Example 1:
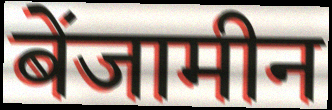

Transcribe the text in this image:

बेंजामीन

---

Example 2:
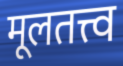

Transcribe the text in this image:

मूलतत्त्व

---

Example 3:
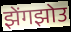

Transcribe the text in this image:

झेंगझोउ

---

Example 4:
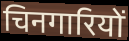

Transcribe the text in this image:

चिनगारियों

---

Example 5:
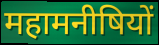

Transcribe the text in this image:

महामनीषियों